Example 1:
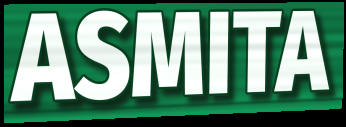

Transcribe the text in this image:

ASMITA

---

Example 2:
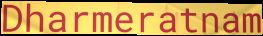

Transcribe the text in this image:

Dharmeratnam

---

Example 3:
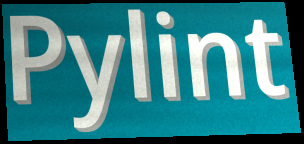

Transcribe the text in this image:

Pylint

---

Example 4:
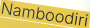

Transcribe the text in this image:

Namboodiri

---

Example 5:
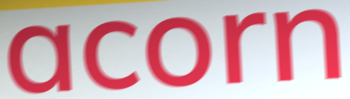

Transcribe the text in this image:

acorn